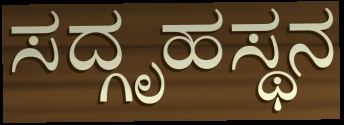
ಸದ್ಗೃಹಸ್ಥನ